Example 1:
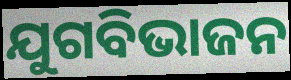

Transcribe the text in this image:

ଯୁଗବିଭାଜନ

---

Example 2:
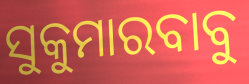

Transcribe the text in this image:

ସୁକୁମାରବାବୁ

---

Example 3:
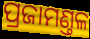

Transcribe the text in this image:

ପ୍ରଜାମଣ୍ତଳ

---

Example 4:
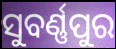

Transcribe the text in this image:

ସୁବର୍ଣ୍ଣପୁର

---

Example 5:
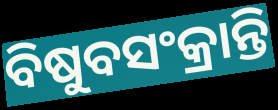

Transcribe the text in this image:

ବିଷୁବସଂକ୍ରାନ୍ତି